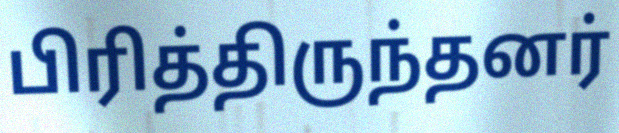
பிரித்திருந்தனர்